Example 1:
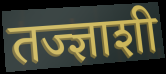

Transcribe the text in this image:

तज्ज्ञाशी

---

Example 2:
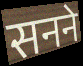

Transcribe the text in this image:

सनने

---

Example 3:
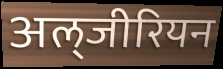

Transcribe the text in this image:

अल्जीरियन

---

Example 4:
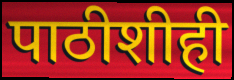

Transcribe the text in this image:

पाठीशीही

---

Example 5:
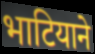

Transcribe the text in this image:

भाटियाने